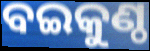
ବଇକୁଣ୍ଠ